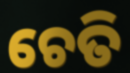
ଚେତି